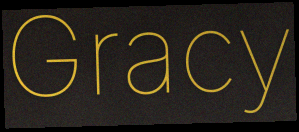
Gracy